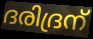
ദരിദ്രന്